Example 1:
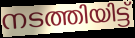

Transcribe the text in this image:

നടത്തിയിട്ട്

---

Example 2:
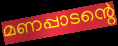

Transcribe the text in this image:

മണപ്പാടന്റെ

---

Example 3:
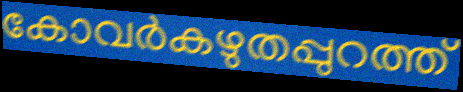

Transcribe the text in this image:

കോവർകഴുതപ്പുറത്ത്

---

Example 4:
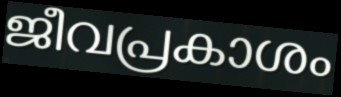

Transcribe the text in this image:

ജീവപ്രകാശം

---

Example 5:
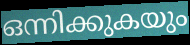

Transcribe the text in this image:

ഒന്നിക്കുകയും